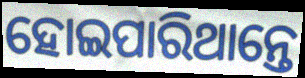
ହୋଇପାରିଥାନ୍ତେ